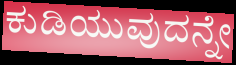
ಕುಡಿಯುವುದನ್ನೇ